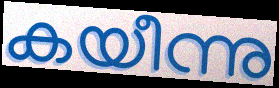
കയീന്നു